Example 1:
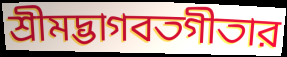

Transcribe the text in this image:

শ্রীমদ্ভাগবতগীতার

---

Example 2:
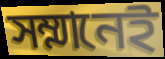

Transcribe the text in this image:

সম্মানেই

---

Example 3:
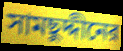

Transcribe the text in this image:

সামছুদ্দীনের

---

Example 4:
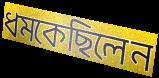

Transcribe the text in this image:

ধমকেছিলেন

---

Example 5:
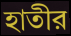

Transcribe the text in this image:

হাতীর